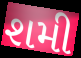
શમી